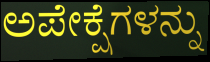
ಅಪೇಕ್ಷೆಗಳನ್ನು